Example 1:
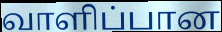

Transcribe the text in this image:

வாளிப்பான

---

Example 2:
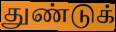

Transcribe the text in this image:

துண்டுக்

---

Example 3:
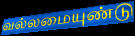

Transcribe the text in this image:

வல்லமையுண்டு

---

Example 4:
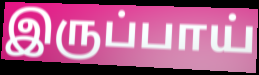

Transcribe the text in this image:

இருப்பாய்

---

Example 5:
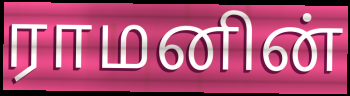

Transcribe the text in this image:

ராமனின்